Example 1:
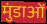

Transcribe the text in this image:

मुंडाओं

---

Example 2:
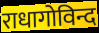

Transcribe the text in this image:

राधागोविन्द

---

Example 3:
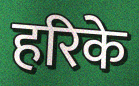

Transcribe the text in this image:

हरिके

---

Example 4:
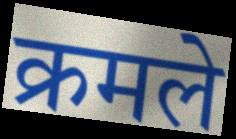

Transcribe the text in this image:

क्रमले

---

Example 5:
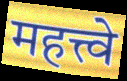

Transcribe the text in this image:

महत्त्वे